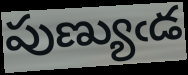
పుణ్యుఁడ